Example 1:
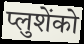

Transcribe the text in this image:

प्लुशेंको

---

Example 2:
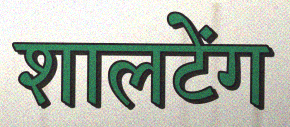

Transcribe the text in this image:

शालटेंग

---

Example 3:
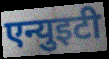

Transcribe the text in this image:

एन्युइटी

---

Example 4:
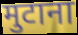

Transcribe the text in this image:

मुटाना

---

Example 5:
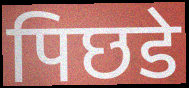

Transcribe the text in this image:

पिछडे